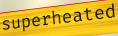
superheated